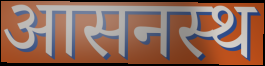
आसनस्थ